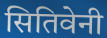
सितिवेनी